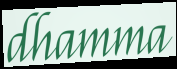
dhamma